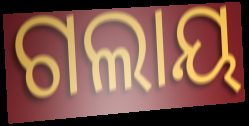
ଗଲାୟ